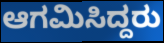
ಆಗಮಿಸಿದ್ದರು